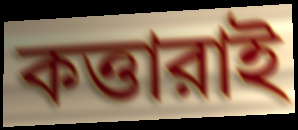
কত্তারাই